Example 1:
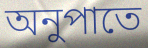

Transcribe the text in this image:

অনুপাতে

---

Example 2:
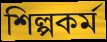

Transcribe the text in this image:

শিল্পকৰ্ম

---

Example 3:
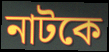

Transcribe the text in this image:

নাটকে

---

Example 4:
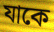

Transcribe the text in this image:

যাকে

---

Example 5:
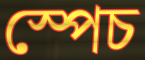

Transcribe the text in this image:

স্পেচ